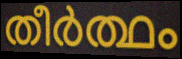
തീർത്ഥം